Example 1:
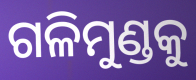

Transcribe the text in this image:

ଗଳିମୁଣ୍ଡକୁ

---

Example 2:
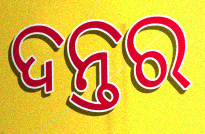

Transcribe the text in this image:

ଦନ୍ତର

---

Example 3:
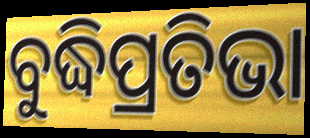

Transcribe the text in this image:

ବୁଦ୍ଧିପ୍ରତିଭା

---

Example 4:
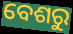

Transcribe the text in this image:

ବେଶରୁ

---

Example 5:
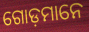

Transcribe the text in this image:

ଗୋଡ଼ମାନେ